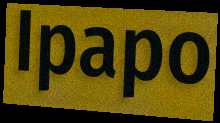
Ipapo